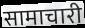
सामाचारी